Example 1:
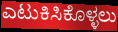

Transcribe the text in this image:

ಎಟುಕಿಸಿಕೊಳ್ಳಲು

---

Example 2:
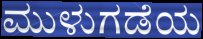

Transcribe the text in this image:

ಮುಳುಗಡೆಯ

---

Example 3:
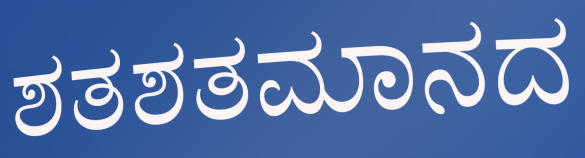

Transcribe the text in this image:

ಶತಶತಮಾನದ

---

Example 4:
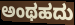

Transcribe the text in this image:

ಅಂಥಹದು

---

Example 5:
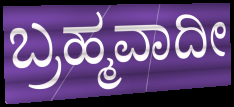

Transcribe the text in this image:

ಬ್ರಹ್ಮವಾದೀ